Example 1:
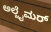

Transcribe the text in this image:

ಅಲ್ಜೈಮರ್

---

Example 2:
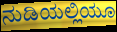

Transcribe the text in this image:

ನುಡಿಯಲ್ಲಿಯೂ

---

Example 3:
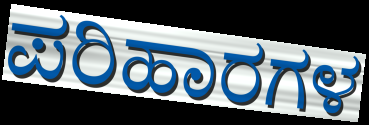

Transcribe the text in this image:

ಪರಿಹಾರಗಳ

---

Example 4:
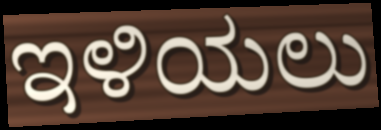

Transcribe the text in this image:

ಇಳಿಯಲು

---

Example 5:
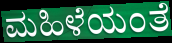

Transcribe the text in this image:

ಮಹಿಳೆಯಂತೆ